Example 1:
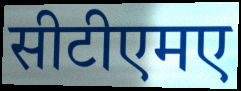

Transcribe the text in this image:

सीटीएमए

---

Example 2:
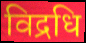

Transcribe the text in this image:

विद्रधि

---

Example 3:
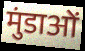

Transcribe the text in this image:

मुंडाओं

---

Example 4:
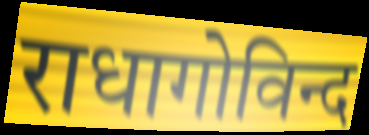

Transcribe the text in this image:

राधागोविन्द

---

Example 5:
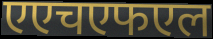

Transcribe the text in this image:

एएचएफएल